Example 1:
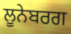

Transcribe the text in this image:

ਲੂਨੇਬਰਗ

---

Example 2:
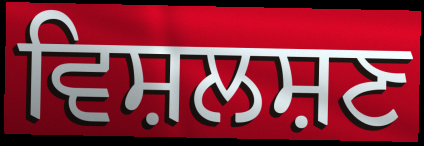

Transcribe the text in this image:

ਵਿਸ਼ਲਸ਼ਣ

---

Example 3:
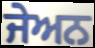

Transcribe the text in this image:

ਜੇਅਨ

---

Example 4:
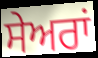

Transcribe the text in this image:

ਸੇਅਰਾਂ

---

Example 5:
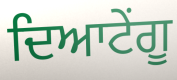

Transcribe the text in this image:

ਦਿਆਟੇਂਗੂ